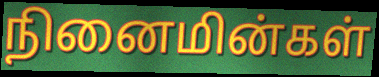
நினைமின்கள்